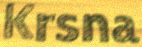
Krsna